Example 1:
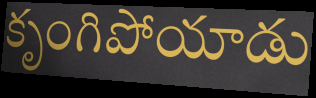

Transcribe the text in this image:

కృంగిపోయాడు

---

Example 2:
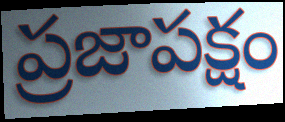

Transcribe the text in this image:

ప్రజాపక్షం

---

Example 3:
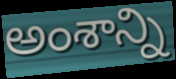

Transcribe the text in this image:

అంశాన్ని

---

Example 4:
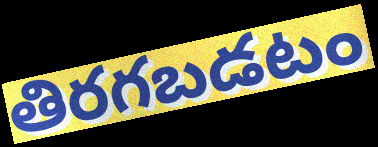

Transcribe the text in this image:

తిరగబడటం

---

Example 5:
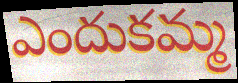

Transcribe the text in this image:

ఎందుకమ్మ